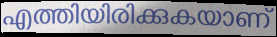
എത്തിയിരിക്കുകയാണ്